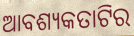
ଆବଶ୍ୟକତାଟିର